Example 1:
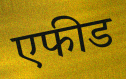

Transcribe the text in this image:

एफीड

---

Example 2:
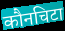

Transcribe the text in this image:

कौनचिटा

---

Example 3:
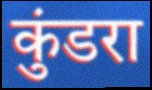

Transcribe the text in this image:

कुंडरा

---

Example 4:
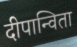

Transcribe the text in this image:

दीपान्विता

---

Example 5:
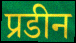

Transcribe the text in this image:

प्रडीन